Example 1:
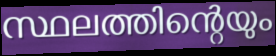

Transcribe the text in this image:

സ്ഥലത്തിന്റെയും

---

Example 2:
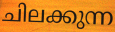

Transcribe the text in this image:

ചിലക്കുന്ന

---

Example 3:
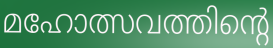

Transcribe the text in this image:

മഹോത്സവത്തിന്റെ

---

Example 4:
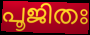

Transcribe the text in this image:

പൂജിതഃ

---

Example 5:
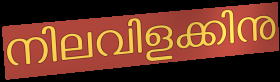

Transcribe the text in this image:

നിലവിളക്കിനു